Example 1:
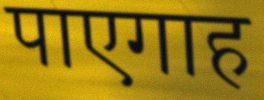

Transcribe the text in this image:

पाएगाह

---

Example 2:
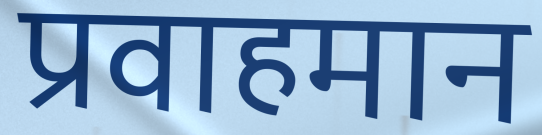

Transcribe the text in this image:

प्रवाहमान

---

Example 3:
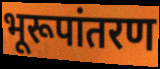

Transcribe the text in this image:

भूरूपांतरण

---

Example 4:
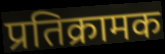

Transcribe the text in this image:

प्रतिक्रामक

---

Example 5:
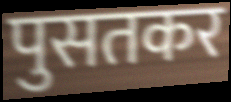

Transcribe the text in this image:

पुसतकर